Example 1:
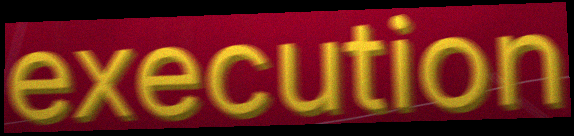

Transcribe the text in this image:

execution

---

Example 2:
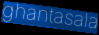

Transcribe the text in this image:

ghantasala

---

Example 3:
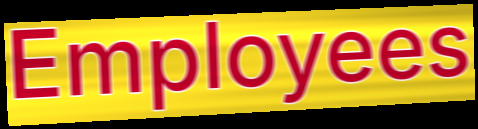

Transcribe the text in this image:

Employees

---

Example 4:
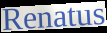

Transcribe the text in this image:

Renatus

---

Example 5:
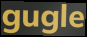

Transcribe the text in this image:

gugle